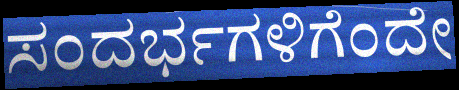
ಸಂದರ್ಭಗಳಿಗೆಂದೇ